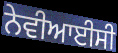
ਨੇਵੀਆਈਸੀ